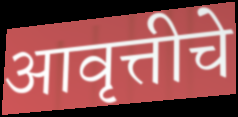
आवृत्तीचे